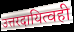
उत्तरदायित्वही